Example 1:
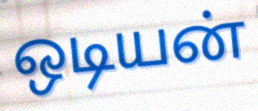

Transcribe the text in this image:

ஒடியன்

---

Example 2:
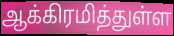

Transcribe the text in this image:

ஆக்கிரமித்துள்ள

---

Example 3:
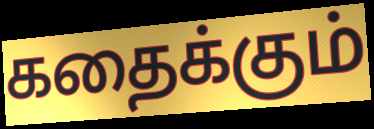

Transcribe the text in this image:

கதைக்கும்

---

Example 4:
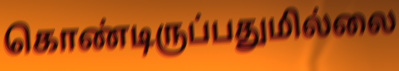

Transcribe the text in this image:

கொண்டிருப்பதுமில்லை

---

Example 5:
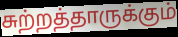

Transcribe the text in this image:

சுற்றத்தாருக்கும்